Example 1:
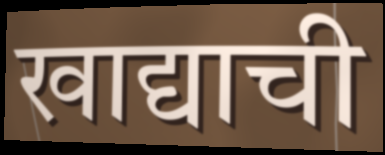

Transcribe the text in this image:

खाद्याची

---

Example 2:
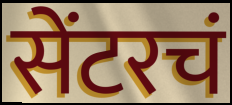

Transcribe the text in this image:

सेंटरचं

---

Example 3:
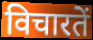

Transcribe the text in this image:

विचारतें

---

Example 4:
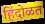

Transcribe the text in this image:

हिंदोळत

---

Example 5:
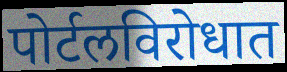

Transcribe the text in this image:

पोर्टलविरोधात